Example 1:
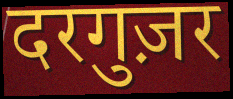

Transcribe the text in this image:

दरगुज़र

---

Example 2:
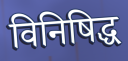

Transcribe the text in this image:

विनिषिद्ध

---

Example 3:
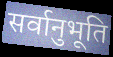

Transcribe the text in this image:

सर्वानुभूति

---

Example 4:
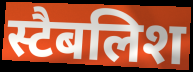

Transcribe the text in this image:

स्टैबलिश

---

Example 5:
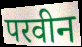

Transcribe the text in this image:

परवीन